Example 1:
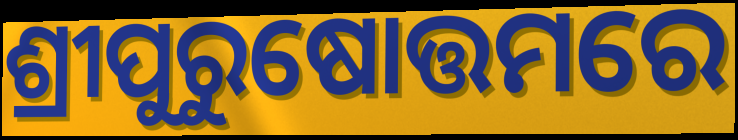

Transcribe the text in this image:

ଶ୍ରୀପୁରୁଷୋତ୍ତମରେ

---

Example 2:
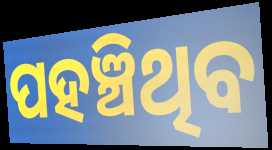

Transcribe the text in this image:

ପହଞ୍ଚିଥିବ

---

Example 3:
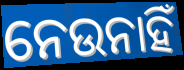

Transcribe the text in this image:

ନେଉନାହିଁ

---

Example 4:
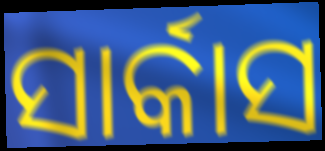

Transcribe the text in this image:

ସାର୍କାସ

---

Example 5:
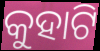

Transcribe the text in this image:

କୁହାଟି